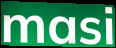
masi